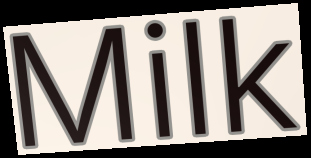
Milk